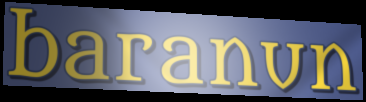
baranun